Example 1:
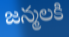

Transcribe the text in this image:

జన్మలకి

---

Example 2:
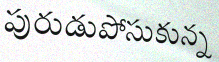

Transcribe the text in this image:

పురుడుపోసుకున్న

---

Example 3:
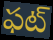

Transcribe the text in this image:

ఫట్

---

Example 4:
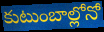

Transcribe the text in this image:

కుటుంబాల్లోనో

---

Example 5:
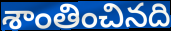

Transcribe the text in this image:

శాంతించినది